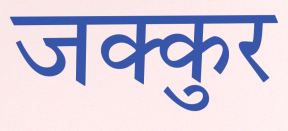
जक्कुर